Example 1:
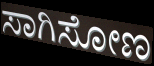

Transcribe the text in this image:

ಸಾಗಿಸೋಣ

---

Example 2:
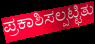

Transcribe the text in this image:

ಪ್ರಕಾಶಿಸಲ್ಪಟ್ಟಿತು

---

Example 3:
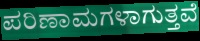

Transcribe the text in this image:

ಪರಿಣಾಮಗಳಾಗುತ್ತವೆ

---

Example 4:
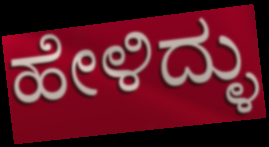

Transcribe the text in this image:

ಹೇಳಿದ್ಳು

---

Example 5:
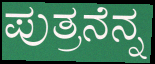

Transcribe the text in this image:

ಪುತ್ರನೆನ್ನ